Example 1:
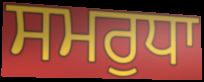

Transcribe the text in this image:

ਸਮਰੁਧਾ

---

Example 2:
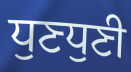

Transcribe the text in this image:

ਧੁਣਧੁਣੀ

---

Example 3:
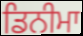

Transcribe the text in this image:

ਡਿਨੀਮਾ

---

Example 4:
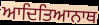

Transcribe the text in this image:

ਆਦਿਤਿਆਨਾਥ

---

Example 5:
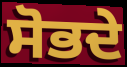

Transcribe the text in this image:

ਸੋਭਦੇ